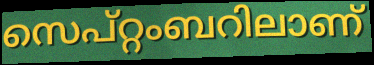
സെപ്റ്റംബറിലാണ്